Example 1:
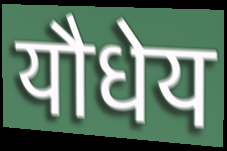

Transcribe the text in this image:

यौधेय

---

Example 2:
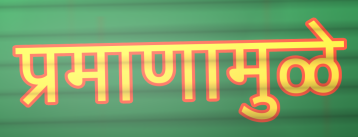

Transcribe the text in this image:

प्रमाणामुळे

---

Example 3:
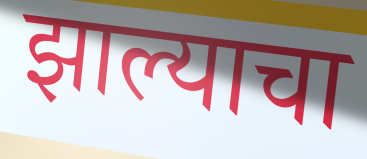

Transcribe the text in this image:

झाल्याचा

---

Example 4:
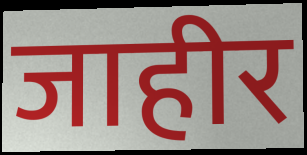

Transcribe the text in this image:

जाहीर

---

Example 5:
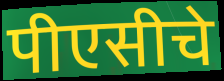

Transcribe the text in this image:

पीएसीचे